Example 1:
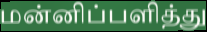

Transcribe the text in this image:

மன்னிப்பளித்து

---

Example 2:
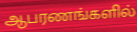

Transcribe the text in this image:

ஆபரணங்களில்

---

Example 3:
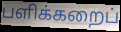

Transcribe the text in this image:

பளிக்கறைப்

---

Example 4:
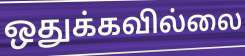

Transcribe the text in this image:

ஒதுக்கவில்லை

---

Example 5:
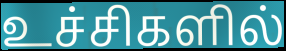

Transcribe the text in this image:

உச்சிகளில்